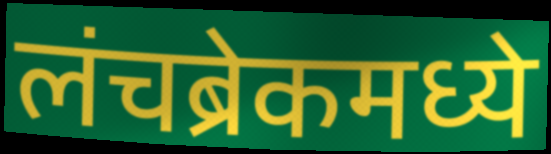
लंचब्रेकमध्ये